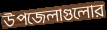
উপজেলাগুলোর